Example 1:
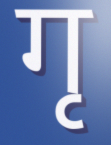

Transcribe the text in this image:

गृ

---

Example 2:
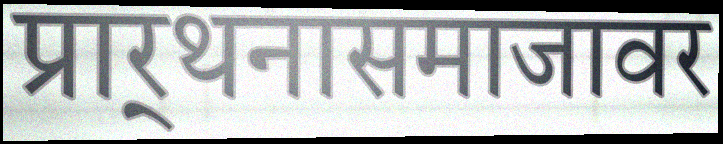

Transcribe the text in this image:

प्रार्थनासमाजावर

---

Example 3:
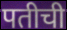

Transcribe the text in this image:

पतीची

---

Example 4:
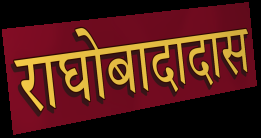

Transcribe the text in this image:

राघोबादादास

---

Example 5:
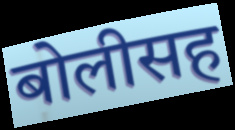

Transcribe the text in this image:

बोलीसह